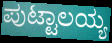
ಪುಟ್ಟಾಲಯ್ಯ